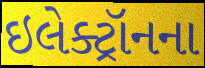
ઇલેક્ટ્રૉનના